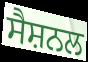
ਸੈਸ਼ਨਲ